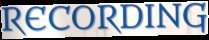
RECORDING